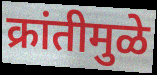
क्रांतीमुळे